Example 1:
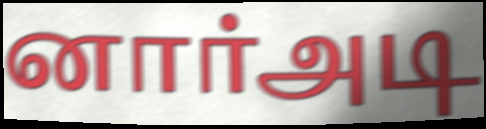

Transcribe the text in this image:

னார்அடி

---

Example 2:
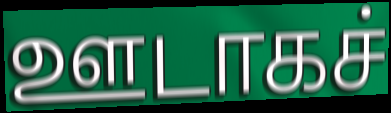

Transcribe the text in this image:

ஊடாகச்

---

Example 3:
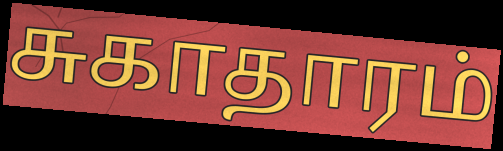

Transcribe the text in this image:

சுகாதாரம்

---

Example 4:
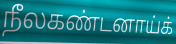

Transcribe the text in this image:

நீலகண்டனாய்க்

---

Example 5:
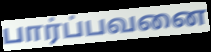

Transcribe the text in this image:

பார்ப்பவனை